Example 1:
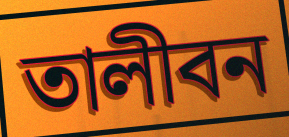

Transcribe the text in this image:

তালীবন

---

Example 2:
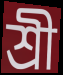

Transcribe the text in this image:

শ্রী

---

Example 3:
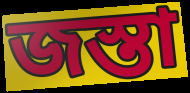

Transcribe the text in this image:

জস্তা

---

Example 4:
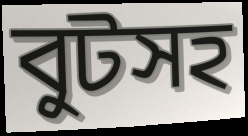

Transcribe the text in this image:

বুটসহ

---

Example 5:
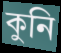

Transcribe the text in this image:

কুনি